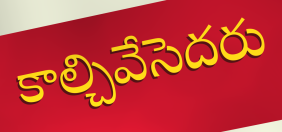
కాల్చివేసెదరు